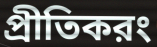
প্রীতিকরং